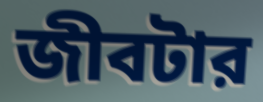
জীবটার